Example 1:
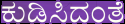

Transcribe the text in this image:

ಕುಡಿಸಿದಂತೆ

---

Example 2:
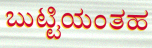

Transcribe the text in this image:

ಬುಟ್ಟಿಯಂತಹ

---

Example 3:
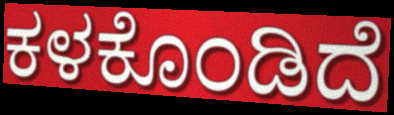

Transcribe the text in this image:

ಕಳಕೊಂಡಿದೆ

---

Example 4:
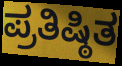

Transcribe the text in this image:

ಪ್ರತಿಷ್ಠಿತ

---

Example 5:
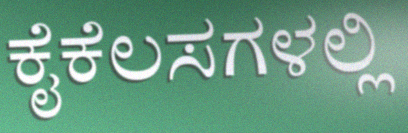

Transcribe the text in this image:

ಕೈಕೆಲಸಗಳಲ್ಲಿ